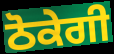
ਠੋਕੇਗੀ